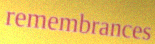
remembrances